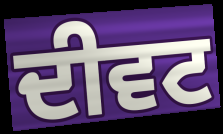
ਦੀਵਟ